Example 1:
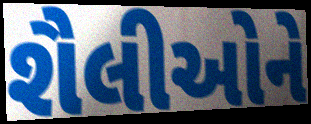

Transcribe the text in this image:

શૈલીઓને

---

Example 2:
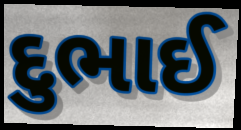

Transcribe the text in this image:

દુભાઈ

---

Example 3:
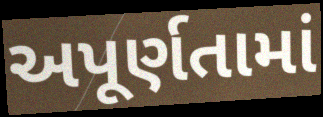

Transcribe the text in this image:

અપૂર્ણતામાં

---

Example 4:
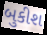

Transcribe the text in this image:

બુકીશ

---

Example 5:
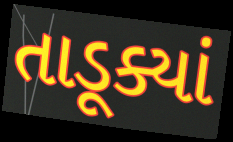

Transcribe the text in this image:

તાડૂક્યાં